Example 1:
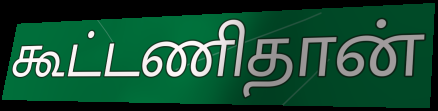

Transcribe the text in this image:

கூட்டணிதான்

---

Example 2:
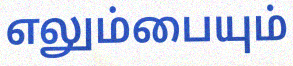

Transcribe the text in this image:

எலும்பையும்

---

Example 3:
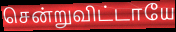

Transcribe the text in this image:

சென்றுவிட்டாயே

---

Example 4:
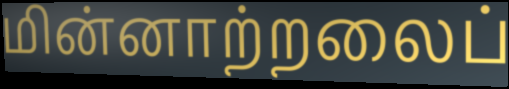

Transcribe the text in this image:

மின்னாற்றலைப்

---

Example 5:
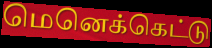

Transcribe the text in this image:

மெனெக்கெட்டு